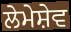
ਲੇਮੇਸ਼ੇਵ